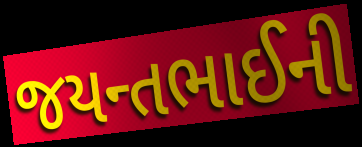
જયન્તભાઈની